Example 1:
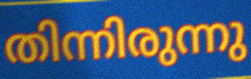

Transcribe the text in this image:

തിന്നിരുന്നു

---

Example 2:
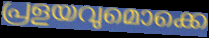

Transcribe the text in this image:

പ്രളയവുമൊക്കെ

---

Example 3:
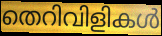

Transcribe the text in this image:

തെറിവിളികൾ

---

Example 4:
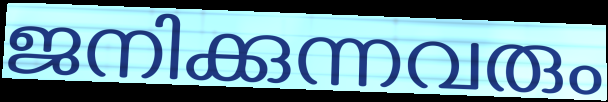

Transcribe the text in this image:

ജനിക്കുന്നവരും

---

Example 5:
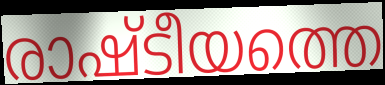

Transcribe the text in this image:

രാഷ്ടീയത്തെ